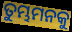
ତୁମ୍ଭମନକୁ